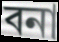
বনা